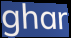
ghar